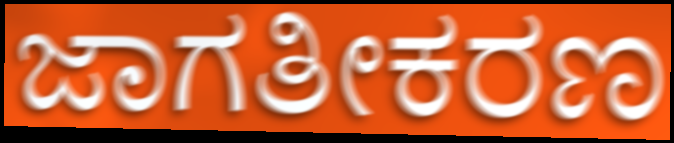
ಜಾಗತೀಕರಣ